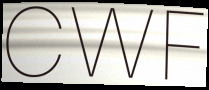
CWF